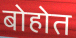
बोहोत